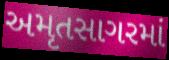
અમૃતસાગરમાં